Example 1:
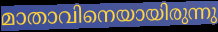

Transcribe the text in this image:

മാതാവിനെയായിരുന്നു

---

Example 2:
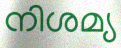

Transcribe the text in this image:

നിശമ്യ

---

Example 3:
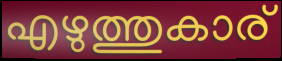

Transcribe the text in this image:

എഴുത്തുകാര്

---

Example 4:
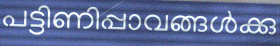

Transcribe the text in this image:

പട്ടിണിപ്പാവങ്ങൾക്കു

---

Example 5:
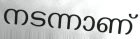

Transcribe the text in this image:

നടന്നാണ്